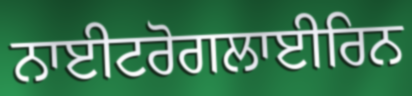
ਨਾਈਟਰੋਗਲਾਈਰਿਨ